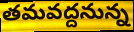
తమవద్దనున్న